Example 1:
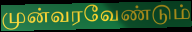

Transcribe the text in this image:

முன்வரவேண்டும்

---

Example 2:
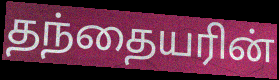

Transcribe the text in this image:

தந்தையரின்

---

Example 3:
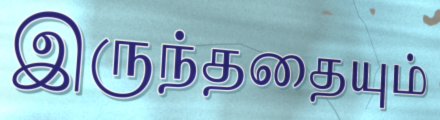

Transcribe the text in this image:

இருந்ததையும்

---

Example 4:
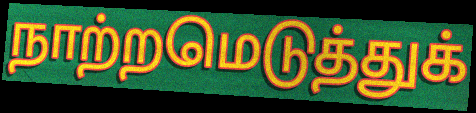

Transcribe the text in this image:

நாற்றமெடுத்துக்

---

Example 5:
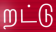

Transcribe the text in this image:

றட்டு